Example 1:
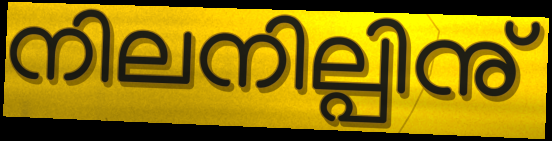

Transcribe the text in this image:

നിലനില്പിനു്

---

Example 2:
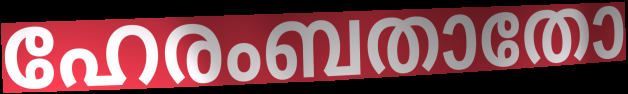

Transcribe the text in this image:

ഹേരംബതാതോ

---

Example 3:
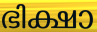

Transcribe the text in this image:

ഭിക്ഷാ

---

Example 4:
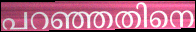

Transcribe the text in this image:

പറഞ്ഞതിനെ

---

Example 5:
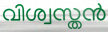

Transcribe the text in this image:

വിശ്വസ്തൻ